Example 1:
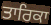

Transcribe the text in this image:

ਤਾਰਿਕਾ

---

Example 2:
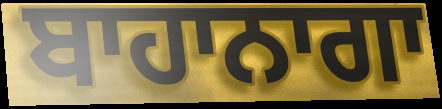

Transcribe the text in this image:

ਬਾਹਾਨਾਗਾ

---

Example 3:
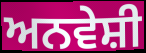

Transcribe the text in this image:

ਅਨਵੇਸ਼ੀ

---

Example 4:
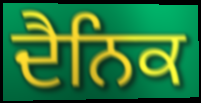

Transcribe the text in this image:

ਦੈਨਿਕ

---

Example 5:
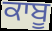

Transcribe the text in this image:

ਕਾਬੂ